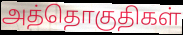
அத்தொகுதிகள்